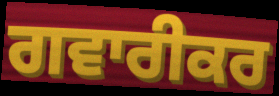
ਗਵਾਰੀਕਰ